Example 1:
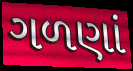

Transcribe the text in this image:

ગળણાં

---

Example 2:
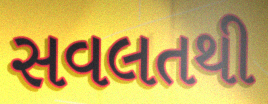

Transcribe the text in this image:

સવલતથી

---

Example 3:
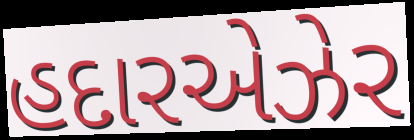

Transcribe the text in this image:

હદારએઝેર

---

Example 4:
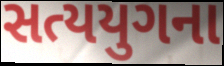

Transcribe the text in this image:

સત્યયુગના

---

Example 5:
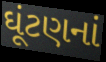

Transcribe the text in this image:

ઘૂંટણનાં